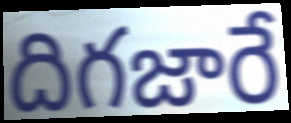
దిగజారే